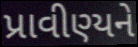
પ્રાવીણ્યને